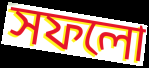
সফলো